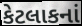
કેટલાકનાં